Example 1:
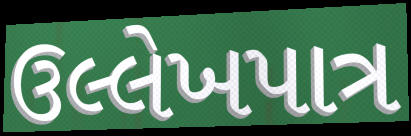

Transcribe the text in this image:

ઉલ્લેખપાત્ર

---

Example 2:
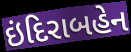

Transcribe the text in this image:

ઇંદિરાબહેન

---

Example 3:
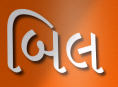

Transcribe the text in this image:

બિલ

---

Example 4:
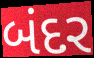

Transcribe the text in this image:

બંદર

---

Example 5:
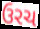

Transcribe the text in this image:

ઉરચ